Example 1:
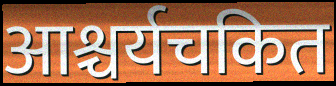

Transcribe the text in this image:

आश्चर्यचकित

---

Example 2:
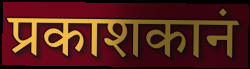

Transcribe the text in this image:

प्रकाशकानं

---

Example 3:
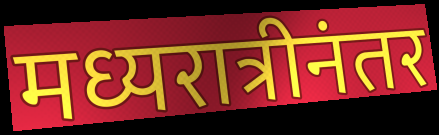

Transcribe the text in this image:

मध्यरात्रीनंतर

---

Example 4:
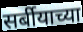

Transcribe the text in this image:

सर्बीयाच्या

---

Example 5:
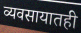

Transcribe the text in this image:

व्यवसायातही